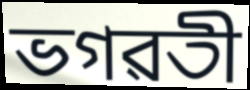
ভগৱতী